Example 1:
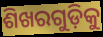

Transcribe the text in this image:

ଶିଖରଗୁଡ଼ିକୁ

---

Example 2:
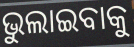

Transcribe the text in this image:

ଭୁଲାଇବାକୁ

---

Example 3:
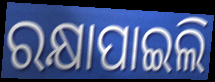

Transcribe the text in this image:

ରକ୍ଷାପାଇଲି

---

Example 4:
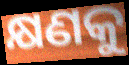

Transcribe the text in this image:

କ୍ଷଣକୁ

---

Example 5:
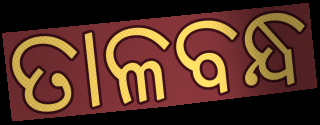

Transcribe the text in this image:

ତାଳବନ୍ଧ